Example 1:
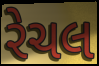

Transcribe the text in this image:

રેચલ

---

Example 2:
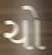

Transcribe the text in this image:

ચો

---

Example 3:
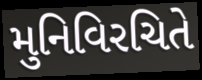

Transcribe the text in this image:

મુનિવિરચિતે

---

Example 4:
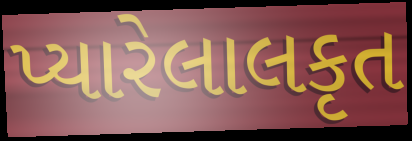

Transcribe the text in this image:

પ્યારેલાલકૃત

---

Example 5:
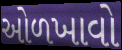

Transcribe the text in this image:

ઓળખાવો